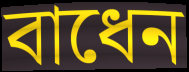
বাধেন